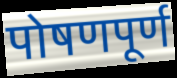
पोषणपूर्ण